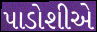
પાડોશીએ